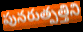
పునరుత్పత్తిని